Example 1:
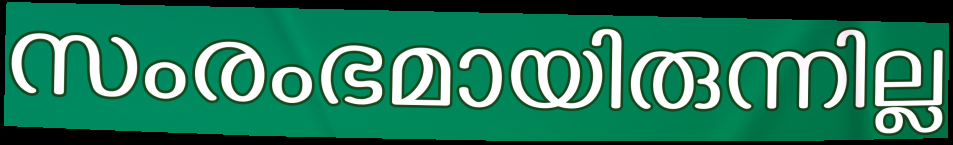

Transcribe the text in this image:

സംരംഭമായിരുന്നില്ല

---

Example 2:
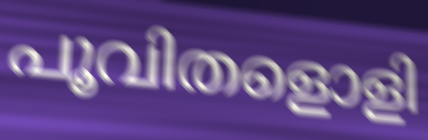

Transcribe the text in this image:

പൂവിതളൊളി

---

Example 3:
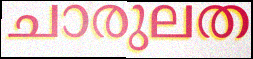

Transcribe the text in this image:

ചാരുലത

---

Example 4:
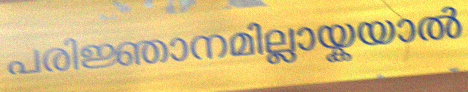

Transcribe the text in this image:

പരിജ്ഞാനമില്ലായ്കയാൽ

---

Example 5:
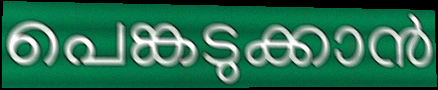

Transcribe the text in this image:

പെങ്കടുക്കാൻ